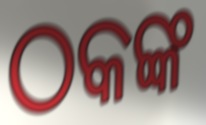
ଠକଙ୍କ